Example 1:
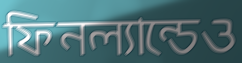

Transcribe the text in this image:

ফিনল্যান্ডেও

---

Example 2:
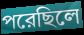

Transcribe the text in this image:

পরেছিলে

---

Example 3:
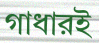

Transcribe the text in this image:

গাধারই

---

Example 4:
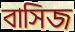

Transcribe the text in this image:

বাসিজ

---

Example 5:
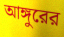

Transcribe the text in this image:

আঙ্গুরের